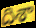
దిశా